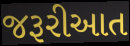
જરૂરીઆત